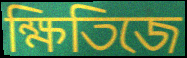
ক্ষিতিজে